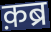
क़ब्र